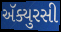
ઍક્યુરસી